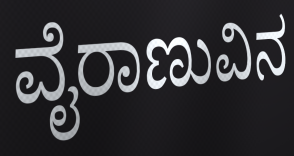
ವೈರಾಣುವಿನ